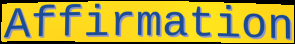
Affirmation